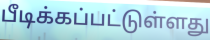
பீடிக்கப்பட்டுள்ளது